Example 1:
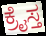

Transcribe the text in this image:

ಕ್ರೈಸ್ತ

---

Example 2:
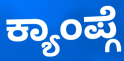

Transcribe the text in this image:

ಕ್ಯಾಂಪ್ಗೆ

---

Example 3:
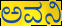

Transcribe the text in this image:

ಅವನಿ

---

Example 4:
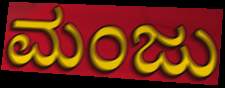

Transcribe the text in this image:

ಮಂಜು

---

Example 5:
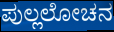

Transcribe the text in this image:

ಪುಲ್ಲಲೋಚನ